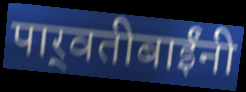
पार्वतीबाईंनी